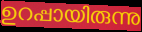
ഉറപ്പായിരുന്നു